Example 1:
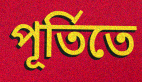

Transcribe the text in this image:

পূর্তিতে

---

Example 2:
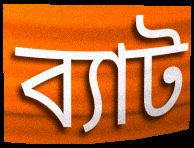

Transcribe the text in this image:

ব্যাট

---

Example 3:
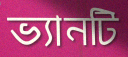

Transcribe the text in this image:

ভ্যানটি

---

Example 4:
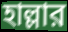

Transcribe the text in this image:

হাল্লার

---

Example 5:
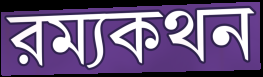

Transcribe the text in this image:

রম্যকথন